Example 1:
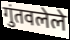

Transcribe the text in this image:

गुंतवलेले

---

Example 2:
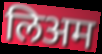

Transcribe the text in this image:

लिअम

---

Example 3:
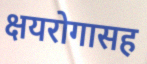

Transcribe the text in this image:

क्षयरोगासह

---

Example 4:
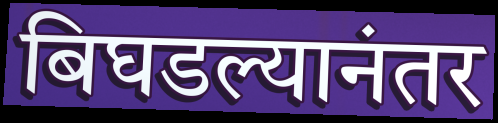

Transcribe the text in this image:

बिघडल्यानंतर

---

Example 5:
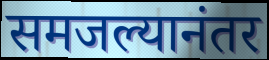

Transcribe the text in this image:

समजल्यानंतर